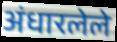
अंधारलेले